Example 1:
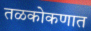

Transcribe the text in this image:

तळकोकणात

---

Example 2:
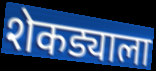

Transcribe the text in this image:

शेकड्याला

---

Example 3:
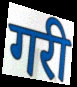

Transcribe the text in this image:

गरी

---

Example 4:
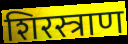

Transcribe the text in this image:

शिरस्त्राण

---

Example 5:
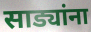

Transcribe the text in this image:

साड्यांना